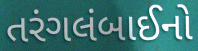
તરંગલંબાઈનો